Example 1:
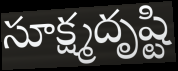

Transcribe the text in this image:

సూక్ష్మదృష్టి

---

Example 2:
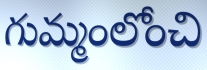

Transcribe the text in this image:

గుమ్మంలోంచి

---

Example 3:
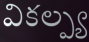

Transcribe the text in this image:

వికల్ప్య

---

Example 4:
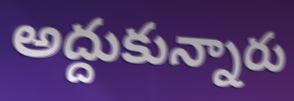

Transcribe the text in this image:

అద్దుకున్నారు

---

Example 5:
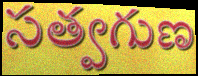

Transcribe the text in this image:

సత్వగుణ